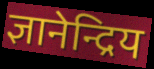
ज्ञानेन्द्रिय